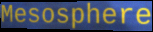
Mesosphere